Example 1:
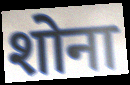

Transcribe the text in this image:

शोना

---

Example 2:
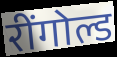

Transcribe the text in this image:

रींगोल्ड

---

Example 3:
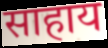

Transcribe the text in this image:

साहाय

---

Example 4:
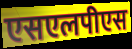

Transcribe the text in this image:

एसएलपीएस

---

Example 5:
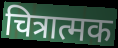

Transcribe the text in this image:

चित्रात्मक